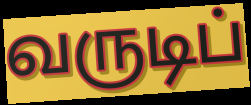
வருடிப்